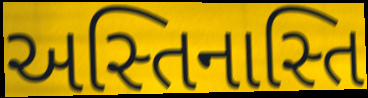
અસ્તિનાસ્તિ